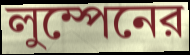
লুম্পেনের